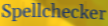
Spellchecker